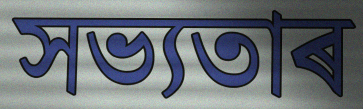
সভ্যতাৰ